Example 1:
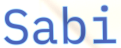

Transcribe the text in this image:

Sabi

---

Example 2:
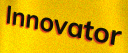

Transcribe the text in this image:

Innovator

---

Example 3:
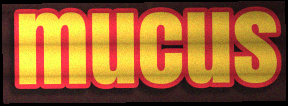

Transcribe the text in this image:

mucus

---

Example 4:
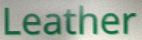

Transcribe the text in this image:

Leather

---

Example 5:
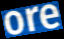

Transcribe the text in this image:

ore